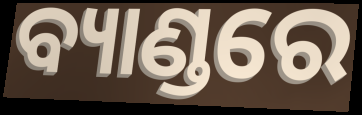
ବ୍ୟାଣ୍ଡରେ